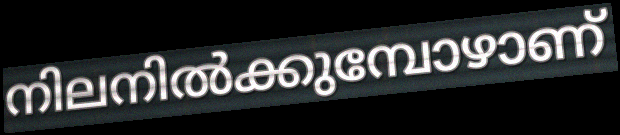
നിലനിൽക്കുമ്പോഴാണ്